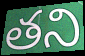
తని